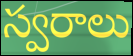
స్వరాలు